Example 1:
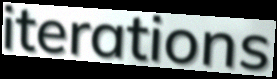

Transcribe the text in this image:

iterations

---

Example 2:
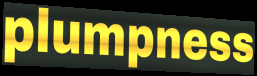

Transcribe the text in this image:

plumpness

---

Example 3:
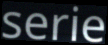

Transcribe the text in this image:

serie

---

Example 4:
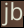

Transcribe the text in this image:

jb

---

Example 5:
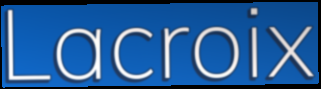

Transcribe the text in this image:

Lacroix